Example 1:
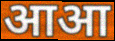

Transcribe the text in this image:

आआ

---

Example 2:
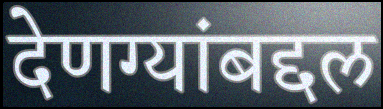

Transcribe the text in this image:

देणग्यांबद्दल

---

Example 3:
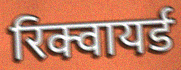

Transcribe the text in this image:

रिक्वायर्ड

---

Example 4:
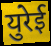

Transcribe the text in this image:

युरेई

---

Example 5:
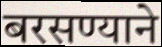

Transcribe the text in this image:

बरसण्याने